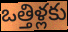
ఒత్తిళ్లకు